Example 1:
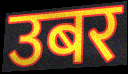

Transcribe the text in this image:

उबर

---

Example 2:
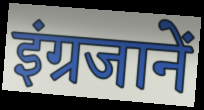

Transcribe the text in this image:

इंग्रजानें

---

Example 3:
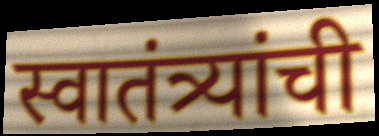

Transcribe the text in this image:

स्वातंत्र्यांची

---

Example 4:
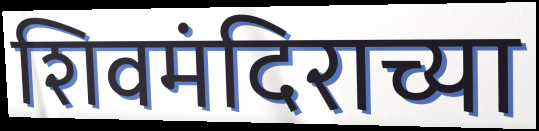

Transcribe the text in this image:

शिवमंदिराच्या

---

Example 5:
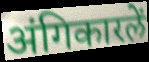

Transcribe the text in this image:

अंगिकारलें